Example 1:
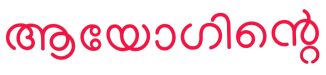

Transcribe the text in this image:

ആയോഗിന്റെ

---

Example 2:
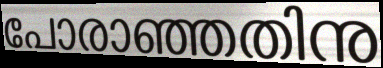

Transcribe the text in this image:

പോരാഞ്ഞതിനു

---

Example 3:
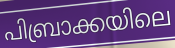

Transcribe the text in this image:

പിബ്രാക്കയിലെ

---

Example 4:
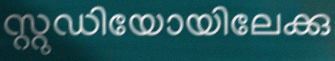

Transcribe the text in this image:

സ്റ്റുഡിയോയിലേക്കു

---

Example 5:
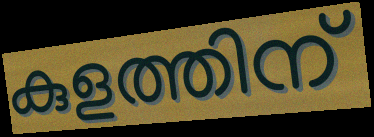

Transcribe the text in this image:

കുളത്തിന്